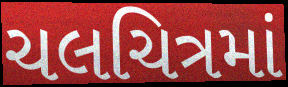
ચલચિત્રમાં